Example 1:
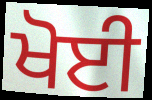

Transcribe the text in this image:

ਖੋਈ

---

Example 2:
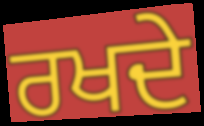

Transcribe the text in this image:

ਰਖਦੇ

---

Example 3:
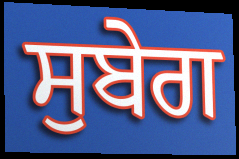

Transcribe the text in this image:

ਸੁਬੇਗ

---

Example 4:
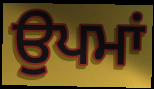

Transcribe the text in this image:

ਉਪਮਾਂ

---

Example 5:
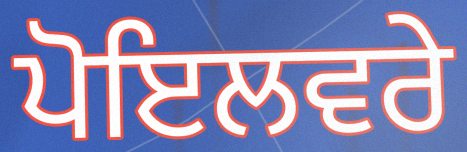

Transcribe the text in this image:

ਪੋਇਲਵਰੇ